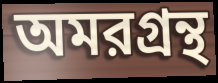
অমরগ্রন্থ